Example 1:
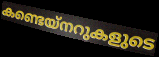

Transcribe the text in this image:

കണ്ടെയ്നറുകളുടെ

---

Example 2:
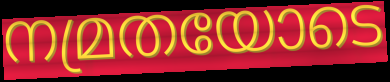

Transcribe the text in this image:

നമ്രതയോടെ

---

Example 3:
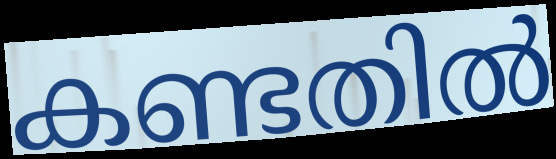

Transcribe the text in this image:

കണ്ടതിൽ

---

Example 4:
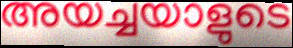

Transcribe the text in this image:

അയച്ചയാളുടെ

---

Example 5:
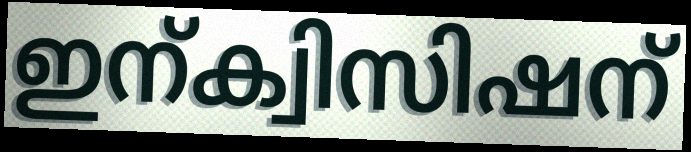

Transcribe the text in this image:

ഇന്ക്വിസിഷന്